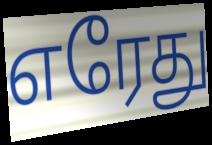
எரேது